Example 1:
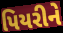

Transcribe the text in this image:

પિયરીને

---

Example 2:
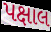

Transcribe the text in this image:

પક્ષાલ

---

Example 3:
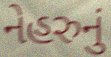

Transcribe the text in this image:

નેહરુનું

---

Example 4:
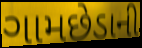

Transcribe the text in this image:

ગામછેડાની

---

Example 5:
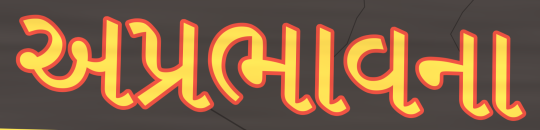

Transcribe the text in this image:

અપ્રભાવના